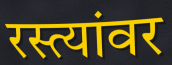
रस्त्यांवर